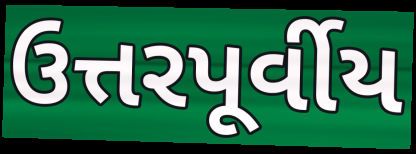
ઉત્તરપૂર્વીય